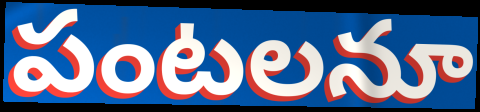
పంటలనూ